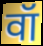
वॉ